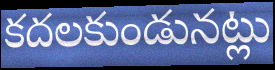
కదలకుండునట్లు